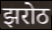
झरोठ